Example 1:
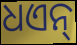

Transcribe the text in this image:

ଧଏନ୍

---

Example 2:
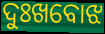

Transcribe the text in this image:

ଦୁଃଖବୋଝ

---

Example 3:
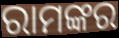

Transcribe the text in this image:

ରାମଙ୍କର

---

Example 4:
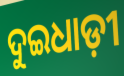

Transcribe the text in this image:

ଦୁଇଧାଡ଼ୀ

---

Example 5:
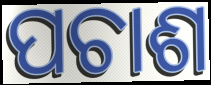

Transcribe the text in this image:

ପଚାଶ